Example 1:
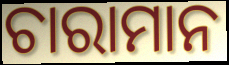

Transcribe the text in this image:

ଚାରାମାନ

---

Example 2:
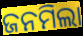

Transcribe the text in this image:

ଜନମିଲା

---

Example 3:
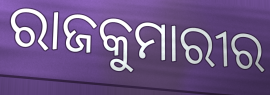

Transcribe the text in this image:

ରାଜକୁମାରୀର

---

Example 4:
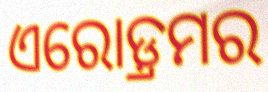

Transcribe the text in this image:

ଏରୋଡ଼୍ରମର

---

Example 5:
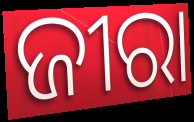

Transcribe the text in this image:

ଜୀରା